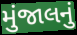
મુંજાલનું